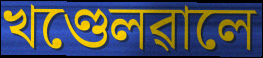
খণ্ডেলৱালে